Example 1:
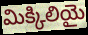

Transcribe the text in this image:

మిక్కిలియై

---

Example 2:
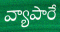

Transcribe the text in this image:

వ్యాపారే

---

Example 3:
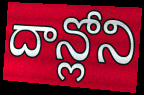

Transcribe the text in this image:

దాన్లోని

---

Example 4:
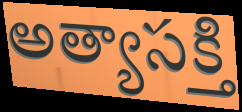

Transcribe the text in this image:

అత్యాసక్తి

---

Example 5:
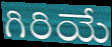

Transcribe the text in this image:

గిరియే